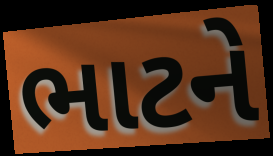
ભાટને